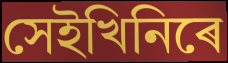
সেইখিনিৰে